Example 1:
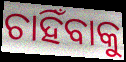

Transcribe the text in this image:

ଚାହିଁବାକୁ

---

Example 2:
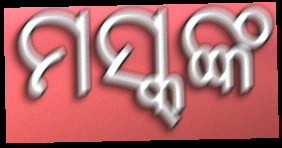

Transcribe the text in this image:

ମସ୍କ୍‌ଙ୍କ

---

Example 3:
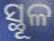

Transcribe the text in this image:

ସ୍ଥୂଳ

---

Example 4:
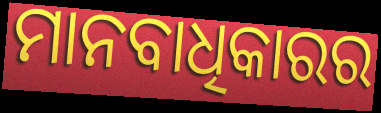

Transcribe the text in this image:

ମାନବାଧିକାରର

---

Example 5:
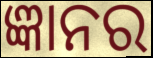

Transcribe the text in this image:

ଜ୍ଞାନର